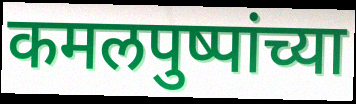
कमलपुष्पांच्या